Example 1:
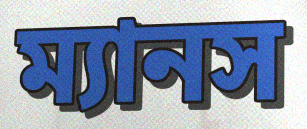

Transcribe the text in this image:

ম্যানস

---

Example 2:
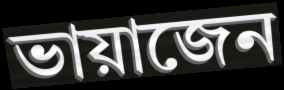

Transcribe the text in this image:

ভায়াজেন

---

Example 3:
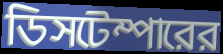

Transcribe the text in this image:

ডিসটেম্পারের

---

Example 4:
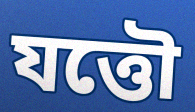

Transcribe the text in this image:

যত্তৌ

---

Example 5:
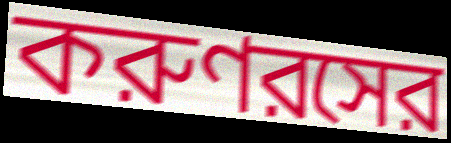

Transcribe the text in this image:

করুণরসের